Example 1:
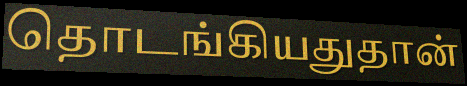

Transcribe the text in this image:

தொடங்கியதுதான்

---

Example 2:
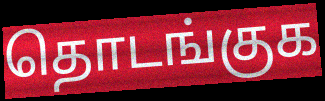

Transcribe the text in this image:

தொடங்குக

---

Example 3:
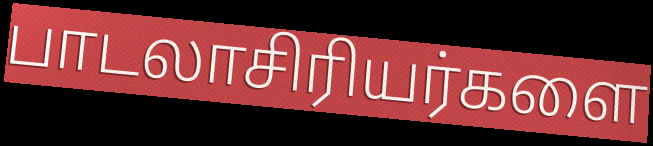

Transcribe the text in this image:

பாடலாசிரியர்களை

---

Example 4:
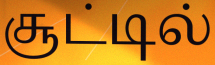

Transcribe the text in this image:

சூட்டில்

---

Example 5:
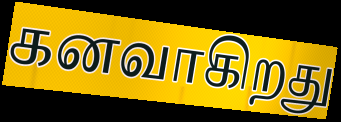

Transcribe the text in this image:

கனவாகிறது